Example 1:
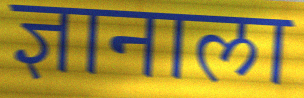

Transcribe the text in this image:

ज्ञानाला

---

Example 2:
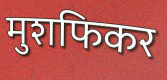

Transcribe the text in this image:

मुशफिकर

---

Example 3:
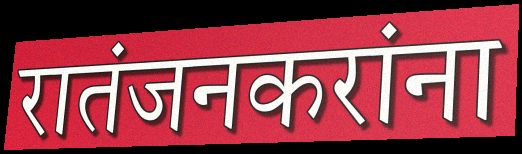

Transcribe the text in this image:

रातंजनकरांना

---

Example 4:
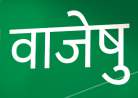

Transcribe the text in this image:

वाजेषु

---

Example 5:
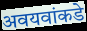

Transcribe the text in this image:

अवयवांकडे